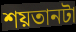
শয়তানটা